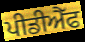
ਪੀਡੀਐੱਫ